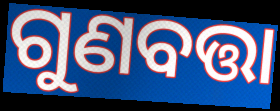
ଗୁଣବତ୍ତା